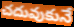
చదువుకునే